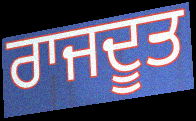
ਰਾਜਦੂਤ